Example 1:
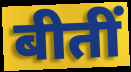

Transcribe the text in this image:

बीतीं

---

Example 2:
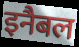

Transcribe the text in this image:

इनैबल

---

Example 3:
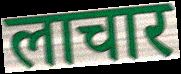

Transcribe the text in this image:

लाचार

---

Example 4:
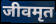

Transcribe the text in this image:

जीवमृत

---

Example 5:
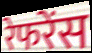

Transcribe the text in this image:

रेफरेंस